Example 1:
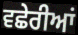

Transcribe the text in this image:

ਵਛੇਰੀਆਂ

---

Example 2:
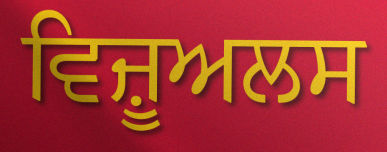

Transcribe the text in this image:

ਵਿਜ਼ੂਅਲਸ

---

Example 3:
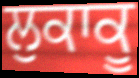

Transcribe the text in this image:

ਲੁਕਾਕੂ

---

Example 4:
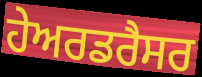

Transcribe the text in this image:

ਹੇਅਰਡਰੈਸਰ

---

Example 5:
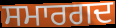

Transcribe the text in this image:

ਸਮਾਰਗਦ